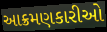
આક્રમણકારીઓ